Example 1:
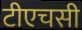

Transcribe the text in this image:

टीएचसी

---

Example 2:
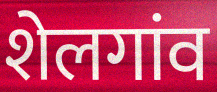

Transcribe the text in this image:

शेलगांव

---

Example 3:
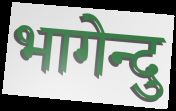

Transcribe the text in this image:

भागेन्दु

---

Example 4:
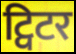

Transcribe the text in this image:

ट्विटर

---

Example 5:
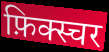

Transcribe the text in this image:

फ़िक्स्चर